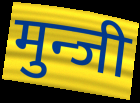
मुन्जी